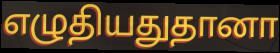
எழுதியதுதானா